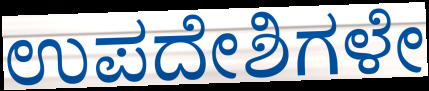
ಉಪದೇಶಿಗಳೇ